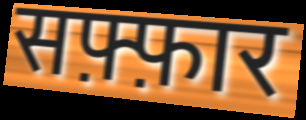
सफ़्फ़ार